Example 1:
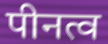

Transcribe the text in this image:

पीनत्व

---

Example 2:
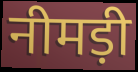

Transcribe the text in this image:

नीमड़ी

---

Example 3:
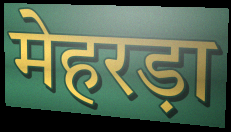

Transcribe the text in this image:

मेहरड़ा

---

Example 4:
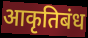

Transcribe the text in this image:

आकृतिबंध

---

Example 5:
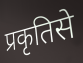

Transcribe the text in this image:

प्रकृतिसे